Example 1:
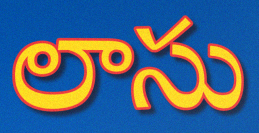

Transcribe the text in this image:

లాసు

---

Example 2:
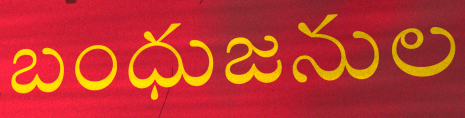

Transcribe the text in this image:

బంధుజనుల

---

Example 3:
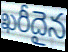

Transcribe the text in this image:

ఖరీదైన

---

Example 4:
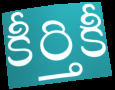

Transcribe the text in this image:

కీర్తికీ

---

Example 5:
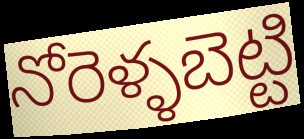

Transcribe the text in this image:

నోరెళ్ళబెట్టి